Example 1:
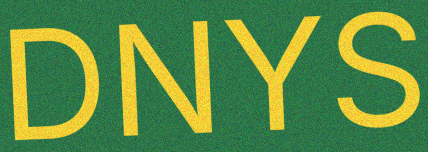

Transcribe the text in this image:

DNYS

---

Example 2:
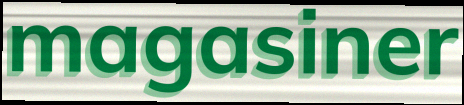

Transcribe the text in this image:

magasiner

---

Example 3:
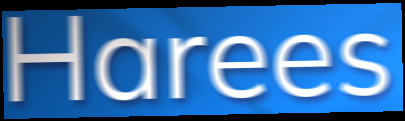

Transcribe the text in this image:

Harees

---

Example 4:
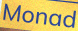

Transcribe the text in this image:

Monad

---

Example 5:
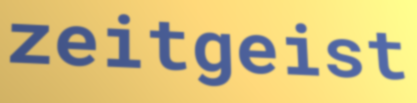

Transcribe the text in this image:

zeitgeist